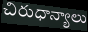
చిరుధాన్యాలు